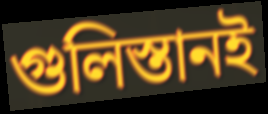
গুলিস্তানই